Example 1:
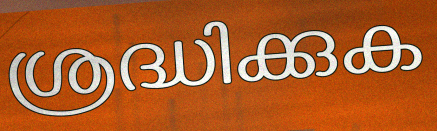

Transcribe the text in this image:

ശ്രദ്ധിക്കുക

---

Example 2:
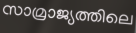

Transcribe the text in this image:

സാമ്രാജ്യത്തിലെ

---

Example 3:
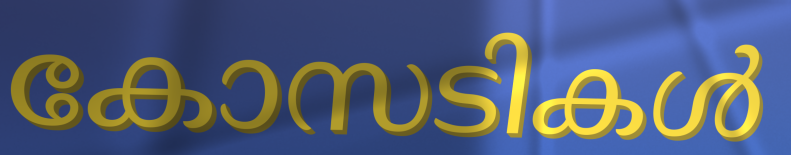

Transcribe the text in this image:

കോസടികൾ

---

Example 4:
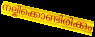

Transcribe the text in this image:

നല്കിക്കൊണ്ടിരിക്കും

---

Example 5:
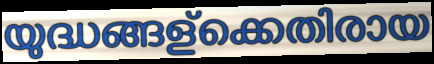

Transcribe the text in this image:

യുദ്ധങ്ങള്ക്കെതിരായ